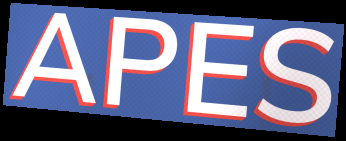
APES